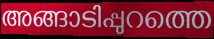
അങ്ങാടിപ്പുറത്തെ